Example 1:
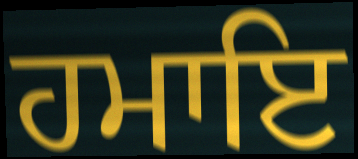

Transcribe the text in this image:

ਹਮਾਇ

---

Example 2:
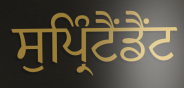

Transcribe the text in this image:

ਸੁਪ੍ਰਿੰਟੈਂਡੈਂਟ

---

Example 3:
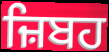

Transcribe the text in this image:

ਜ਼ਿਬਹ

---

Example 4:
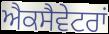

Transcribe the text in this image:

ਐਕਸੈਵੇਟਰਾਂ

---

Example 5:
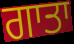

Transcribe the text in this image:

ਗਾਤਾ